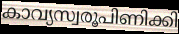
കാവ്യസ്വരൂപിണിക്കി